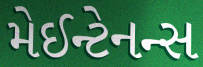
મેઈન્ટેનન્સ